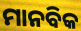
ମାନବିକ